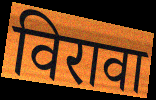
विरावा